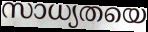
സാധ്യതയെ